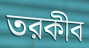
তরকীব